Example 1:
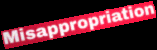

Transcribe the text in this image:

Misappropriation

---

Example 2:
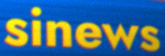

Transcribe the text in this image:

sinews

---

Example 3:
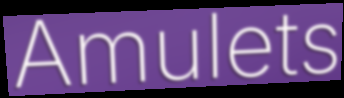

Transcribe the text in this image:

Amulets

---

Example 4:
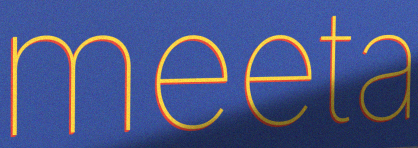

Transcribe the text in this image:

meeta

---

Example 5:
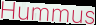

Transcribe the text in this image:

Hummus